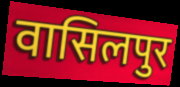
वासिलपुर